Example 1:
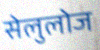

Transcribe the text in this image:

सेलुलोज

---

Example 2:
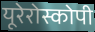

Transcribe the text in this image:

यूरेरोस्कोपी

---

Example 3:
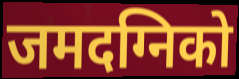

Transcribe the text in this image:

जमदग्निको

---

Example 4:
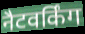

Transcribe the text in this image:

नैटवर्किंग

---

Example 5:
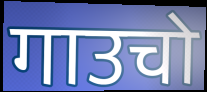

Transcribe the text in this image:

गाउचो